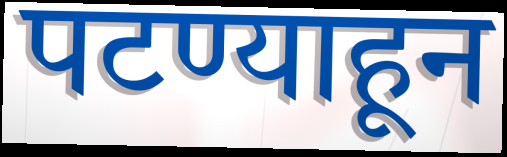
पटण्याहून